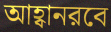
আহ্বানরবে